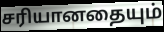
சரியானதையும்